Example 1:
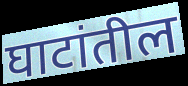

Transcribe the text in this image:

घाटांतील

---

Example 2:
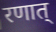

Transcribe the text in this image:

रणात्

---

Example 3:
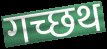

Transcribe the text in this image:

गच्छथ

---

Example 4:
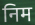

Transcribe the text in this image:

निम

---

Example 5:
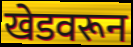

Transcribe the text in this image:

खेडवरून